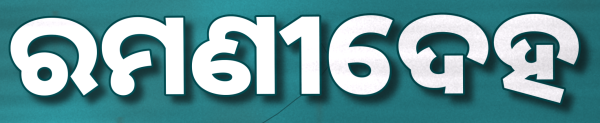
ରମଣୀଦେହ